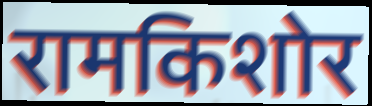
रामकिशोर